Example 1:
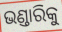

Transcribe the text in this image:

ଭଣ୍ଡାରିକୁ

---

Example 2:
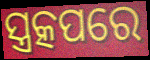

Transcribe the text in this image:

ସ୍ତ୍ରତ୍କପରେ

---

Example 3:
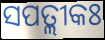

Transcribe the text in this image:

ସପତ୍ଲୀକଃ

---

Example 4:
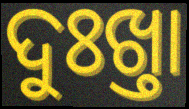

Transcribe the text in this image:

ଦୁଃଖ୍ତା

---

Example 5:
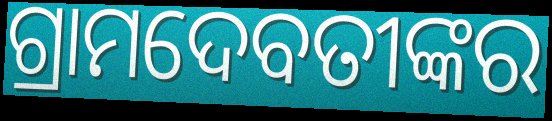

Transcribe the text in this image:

ଗ୍ରାମଦେବତୀଙ୍କର